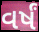
વર્ષં